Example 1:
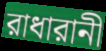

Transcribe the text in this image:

রাধারানী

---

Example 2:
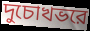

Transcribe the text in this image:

দুচোখভরে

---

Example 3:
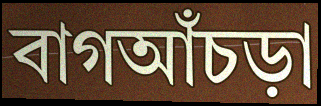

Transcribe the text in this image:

বাগআঁচড়া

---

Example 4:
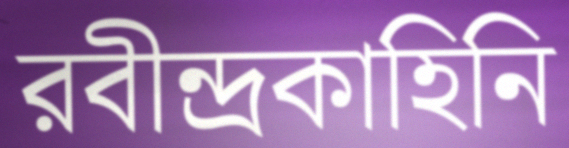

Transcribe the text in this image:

রবীন্দ্রকাহিনি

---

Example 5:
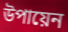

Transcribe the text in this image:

উপায়েন